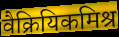
वैक्रियिकमिश्र